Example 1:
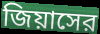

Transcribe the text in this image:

জিয়াসের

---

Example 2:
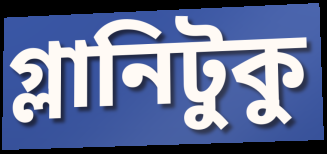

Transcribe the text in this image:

গ্লানিটুকু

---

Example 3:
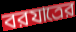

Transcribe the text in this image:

বরযাত্রের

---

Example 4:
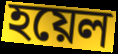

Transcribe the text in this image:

হয়েল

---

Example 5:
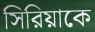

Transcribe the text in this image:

সিরিয়াকে